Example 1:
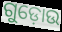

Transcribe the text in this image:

ଗୁଡ଼ୋଉ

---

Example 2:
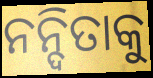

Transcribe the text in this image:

ନନ୍ଦିତାକୁ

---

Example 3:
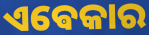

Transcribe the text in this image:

ଏଵେକାର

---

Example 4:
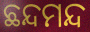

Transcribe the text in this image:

ଛନ୍ଦମନ୍ଦ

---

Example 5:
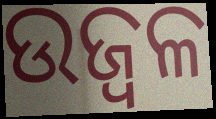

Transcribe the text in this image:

ଉଜ୍ବଳ